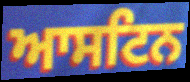
ਆਸਟਿਨ